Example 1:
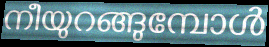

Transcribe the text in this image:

നീയുറങ്ങുമ്പോൾ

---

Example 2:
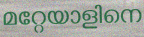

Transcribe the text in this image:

മറ്റേയാളിനെ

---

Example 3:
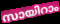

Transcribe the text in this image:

സായിറാം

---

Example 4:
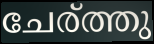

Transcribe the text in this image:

ചേര്ത്തു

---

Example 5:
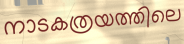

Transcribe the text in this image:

നാടകത്രയത്തിലെ